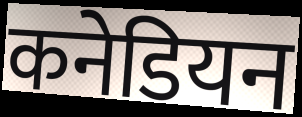
कनेडियन